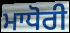
ਮਾਧੋਰੀ